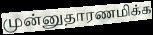
முன்னுதாரணமிக்க